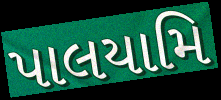
પાલયામિ